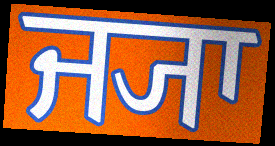
ਜ੍ਯਾ